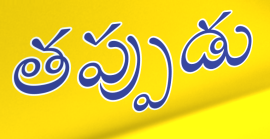
తప్పుడు